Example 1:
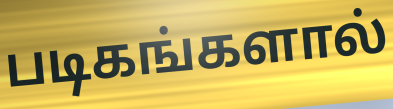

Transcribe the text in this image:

படிகங்களால்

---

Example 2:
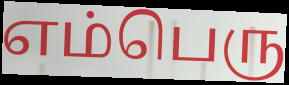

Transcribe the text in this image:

எம்பெரு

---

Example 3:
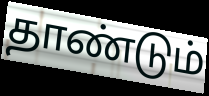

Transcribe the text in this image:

தாண்டும்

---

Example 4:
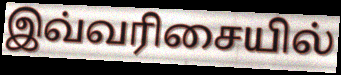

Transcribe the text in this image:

இவ்வரிசையில்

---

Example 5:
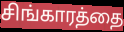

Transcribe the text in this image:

சிங்காரத்தை